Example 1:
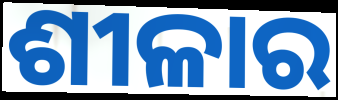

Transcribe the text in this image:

ଶୀଳାର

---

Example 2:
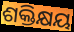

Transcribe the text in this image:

ଶକ୍ତିକ୍ଷୟ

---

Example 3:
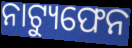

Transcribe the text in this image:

ନାଟ୍ୟୁଫେନ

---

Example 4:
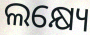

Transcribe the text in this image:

ଲକ୍ଷ୍ୟେ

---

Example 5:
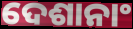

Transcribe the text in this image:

ଦେଶାନାଂ